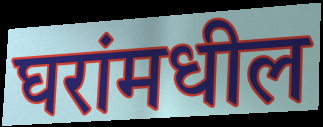
घरांमधील